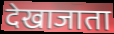
देखाजाता